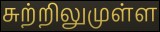
சுற்றிலுமுள்ள